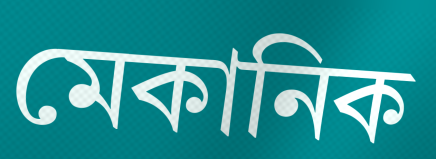
মেকানিক